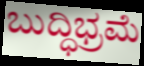
ಬುದ್ಧಿಭ್ರಮೆ